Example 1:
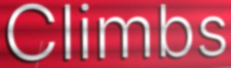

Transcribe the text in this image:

Climbs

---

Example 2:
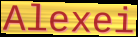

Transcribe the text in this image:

Alexei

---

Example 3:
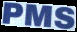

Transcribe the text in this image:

PMS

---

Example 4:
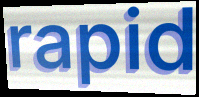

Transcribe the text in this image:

rapid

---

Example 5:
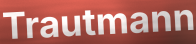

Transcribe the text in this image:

Trautmann